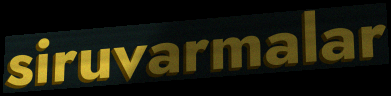
siruvarmalar